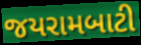
જયરામબાટી